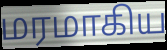
மரமாகிய